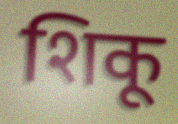
शिकू